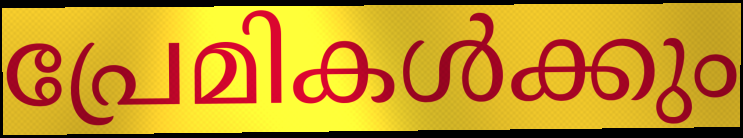
പ്രേമികൾക്കും